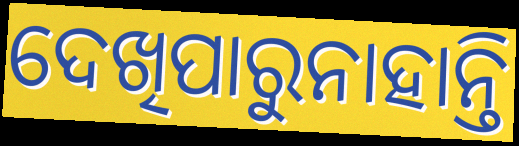
ଦେଖିପାରୁନାହାନ୍ତି